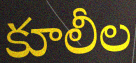
కూలీల